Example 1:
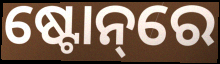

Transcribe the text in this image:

ଷ୍ଟୋନ୍‌ରେ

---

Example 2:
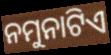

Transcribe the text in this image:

ନମୁନାଟିଏ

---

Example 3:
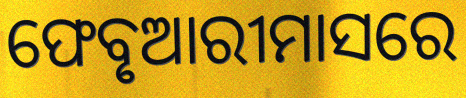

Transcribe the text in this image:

ଫେବୃଆରୀମାସରେ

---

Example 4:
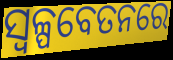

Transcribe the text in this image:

ସ୍ୱଳ୍ପବେତନରେ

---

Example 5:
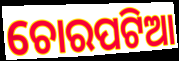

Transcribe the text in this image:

ଚୋରପଟିଆ